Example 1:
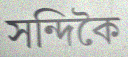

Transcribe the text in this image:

সন্দিকৈ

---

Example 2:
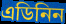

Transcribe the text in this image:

এডিনিন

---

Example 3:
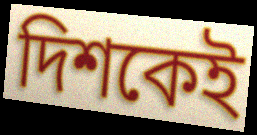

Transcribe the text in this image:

দিশকেই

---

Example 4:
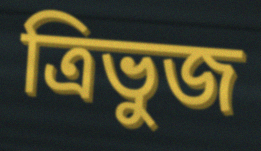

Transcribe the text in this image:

ত্ৰিভুজ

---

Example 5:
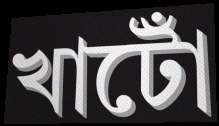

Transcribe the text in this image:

খাটোঁ